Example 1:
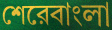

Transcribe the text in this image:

শেরেবাংলা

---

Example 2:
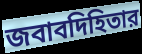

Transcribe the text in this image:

জবাবদিহিতার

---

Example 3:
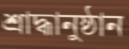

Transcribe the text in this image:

শ্রাদ্ধানুষ্ঠান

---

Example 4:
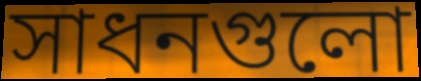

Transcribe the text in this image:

সাধনগুলো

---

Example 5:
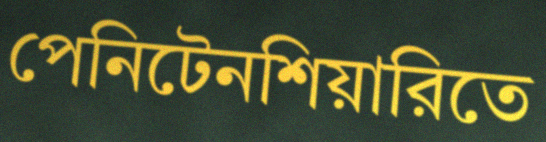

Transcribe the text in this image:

পেনিটেনশিয়ারিতে